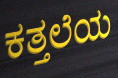
ಕತ್ತಲೆಯ